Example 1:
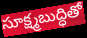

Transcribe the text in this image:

సూక్ష్మబుద్ధితో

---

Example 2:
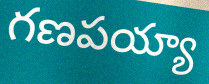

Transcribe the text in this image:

గణపయ్యా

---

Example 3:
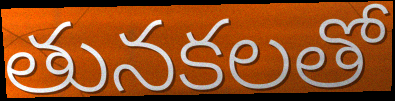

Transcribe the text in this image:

తునకలతో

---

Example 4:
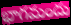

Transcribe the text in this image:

భాగమందు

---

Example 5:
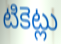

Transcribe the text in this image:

టికెట్లు